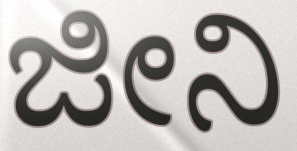
ಜೀನಿ